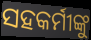
ସହକର୍ମୀଙ୍କୁ